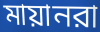
মায়ানরা